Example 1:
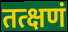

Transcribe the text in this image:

तत्क्षणं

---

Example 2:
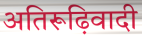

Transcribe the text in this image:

अतिरूढ़िवादी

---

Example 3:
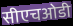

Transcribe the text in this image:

सीएचओडी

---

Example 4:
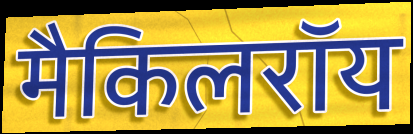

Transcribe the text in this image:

मैकिलरॉय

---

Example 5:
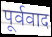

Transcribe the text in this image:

पूर्ववाद